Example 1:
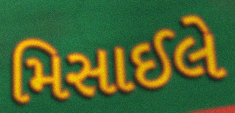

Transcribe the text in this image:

મિસાઈલે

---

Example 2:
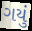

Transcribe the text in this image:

ગયું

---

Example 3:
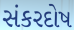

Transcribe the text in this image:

સંકરદોષ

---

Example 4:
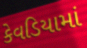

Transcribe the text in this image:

કેવડિયામાં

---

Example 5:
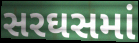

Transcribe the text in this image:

સરઘસમાં